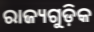
ରାଜ୍ୟଗୁଡ଼ିକ